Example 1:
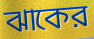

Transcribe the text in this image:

ঝাকের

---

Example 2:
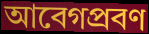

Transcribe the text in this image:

আবেগপ্রবণ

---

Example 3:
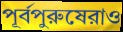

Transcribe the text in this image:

পূর্বপুরুষেরাও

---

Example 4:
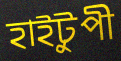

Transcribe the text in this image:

হাইটুপী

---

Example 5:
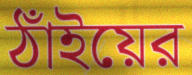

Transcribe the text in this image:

ঠাঁইয়ের